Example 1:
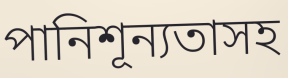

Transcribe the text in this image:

পানিশূন্যতাসহ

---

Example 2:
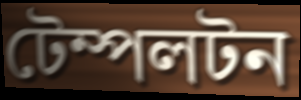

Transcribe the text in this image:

টেম্পলটন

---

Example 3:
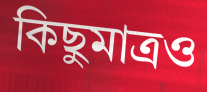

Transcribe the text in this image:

কিছুমাত্রও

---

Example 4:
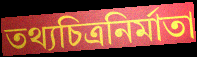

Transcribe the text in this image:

তথ্যচিত্রনির্মাতা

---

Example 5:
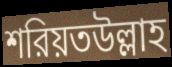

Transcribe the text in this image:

শরিয়তউল্লাহ